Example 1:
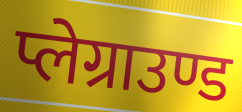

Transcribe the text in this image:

प्लेग्राउण्ड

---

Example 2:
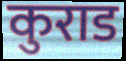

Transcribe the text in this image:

कुराड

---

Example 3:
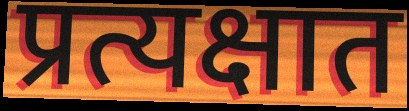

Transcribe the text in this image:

प्रत्यक्षात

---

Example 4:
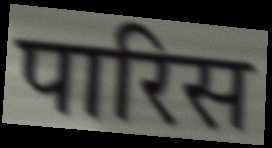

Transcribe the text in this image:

पारिस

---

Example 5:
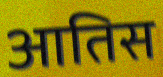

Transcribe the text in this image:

आतिस